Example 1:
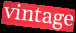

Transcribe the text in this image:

vintage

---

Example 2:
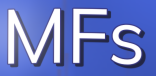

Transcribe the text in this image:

MFs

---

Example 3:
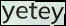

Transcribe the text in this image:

yetey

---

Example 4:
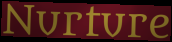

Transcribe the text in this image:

Nurture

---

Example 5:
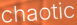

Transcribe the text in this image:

chaotic